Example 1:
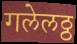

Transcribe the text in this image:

गलेलठ्ठ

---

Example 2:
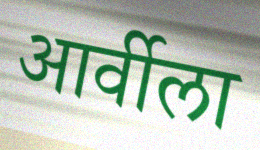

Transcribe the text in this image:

आर्वीला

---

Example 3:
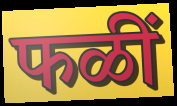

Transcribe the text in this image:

फळीं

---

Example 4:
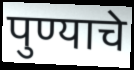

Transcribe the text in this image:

पुण्याचे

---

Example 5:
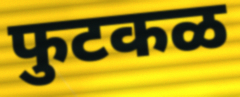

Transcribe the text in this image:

फुटकळ